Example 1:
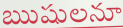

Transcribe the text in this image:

ఋషులనూ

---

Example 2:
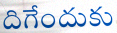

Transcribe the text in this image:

దిగేందుకు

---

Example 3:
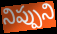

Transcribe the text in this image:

నిప్పుని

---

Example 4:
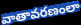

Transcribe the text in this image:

వాతావరణంలా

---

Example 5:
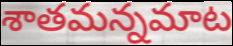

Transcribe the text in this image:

శాతమన్నమాట